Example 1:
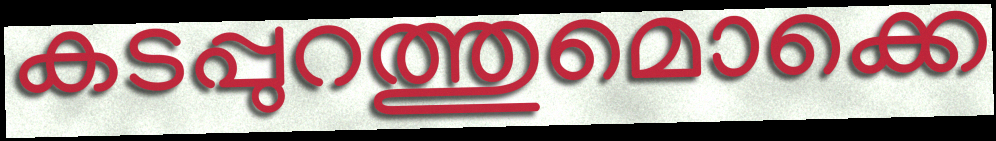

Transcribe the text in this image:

കടപ്പുറത്തുമൊക്കെ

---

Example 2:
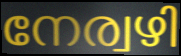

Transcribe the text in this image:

നേര്വഴി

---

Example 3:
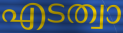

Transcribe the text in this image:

എടത്വാ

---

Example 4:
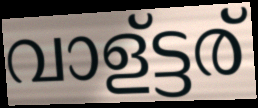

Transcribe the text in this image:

വാള്ട്ടര്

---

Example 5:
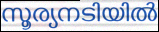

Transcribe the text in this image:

സൂര്യനടിയിൽ